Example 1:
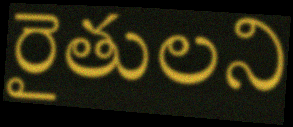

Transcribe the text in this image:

రైతులని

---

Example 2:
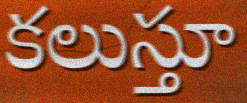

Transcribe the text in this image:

కలుస్తూ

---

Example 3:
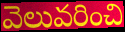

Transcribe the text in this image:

వెలువరించి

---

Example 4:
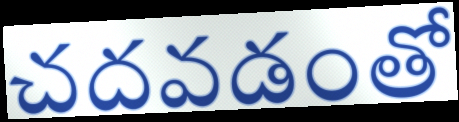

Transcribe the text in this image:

చదవడంతో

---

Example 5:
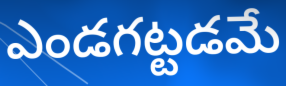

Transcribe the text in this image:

ఎండగట్టడమే